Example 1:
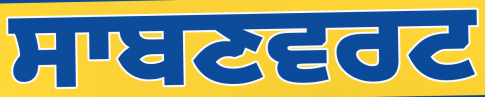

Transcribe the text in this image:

ਸਾਬਣਵਰਟ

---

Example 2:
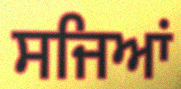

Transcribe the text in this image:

ਸਜਿਆਂ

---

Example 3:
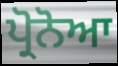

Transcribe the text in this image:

ਪ੍ਰੋਨੋਆ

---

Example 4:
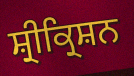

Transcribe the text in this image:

ਸ਼੍ਰੀਕ੍ਰਿਸ਼ਨ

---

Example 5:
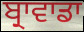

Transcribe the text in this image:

ਬ੍ਰਾਵਾਡਾ